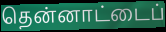
தென்னாட்டைப்